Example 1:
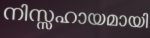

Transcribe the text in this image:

നിസ്സഹായമായി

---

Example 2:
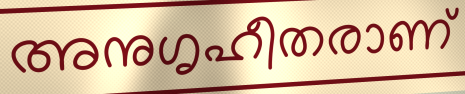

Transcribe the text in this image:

അനുഗൃഹീതരാണ്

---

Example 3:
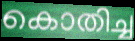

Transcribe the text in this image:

കൊതിച്ച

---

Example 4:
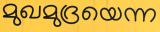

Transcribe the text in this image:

മുഖമുദ്രയെന്ന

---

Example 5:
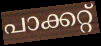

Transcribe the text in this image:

പാക്കറ്റ്